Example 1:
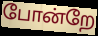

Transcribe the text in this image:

போன்றே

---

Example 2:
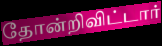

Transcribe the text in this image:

தோன்றிவிட்டார்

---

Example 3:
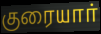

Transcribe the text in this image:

குரையார்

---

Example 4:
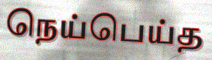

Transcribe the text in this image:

நெய்பெய்த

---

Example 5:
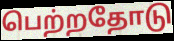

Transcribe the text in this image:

பெற்றதோடு